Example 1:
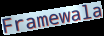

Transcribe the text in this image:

Framewala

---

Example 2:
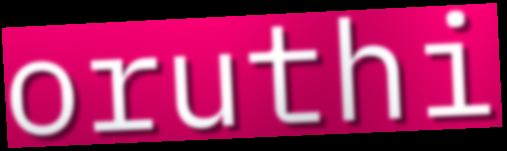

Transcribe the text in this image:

oruthi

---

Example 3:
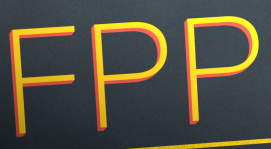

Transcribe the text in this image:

FPP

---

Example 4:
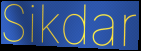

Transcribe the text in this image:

Sikdar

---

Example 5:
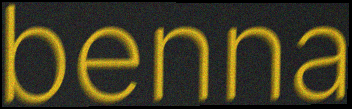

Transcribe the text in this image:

benna